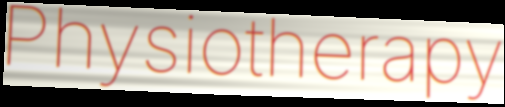
Physiotherapy